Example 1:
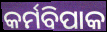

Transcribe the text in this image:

କର୍ମବିପାକ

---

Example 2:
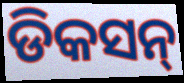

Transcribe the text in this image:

ଡିକସନ୍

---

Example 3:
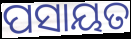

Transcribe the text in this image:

ପସାୟତ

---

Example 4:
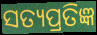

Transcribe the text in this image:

ସତ୍ୟପ୍ରତିଜ୍ଞ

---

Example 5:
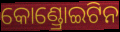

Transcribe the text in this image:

କୋଣ୍ଡ୍ରୋଇଟିନ